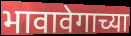
भावावेगाच्या